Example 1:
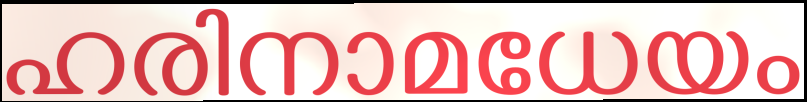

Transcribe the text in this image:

ഹരിനാമധേയം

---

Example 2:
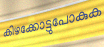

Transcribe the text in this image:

കിഴക്കോട്ടുപോകുക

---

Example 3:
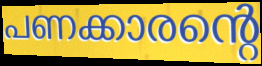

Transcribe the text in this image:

പണക്കാരന്റെ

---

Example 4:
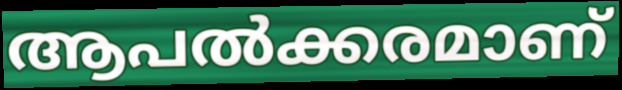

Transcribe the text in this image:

ആപൽക്കരമാണ്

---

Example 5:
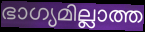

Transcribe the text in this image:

ഭാഗ്യമില്ലാത്ത